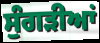
ਸੁੰਗੜੀਆਂ